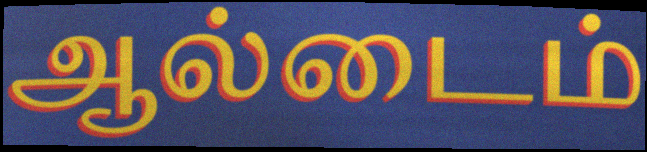
ஆல்டைம்